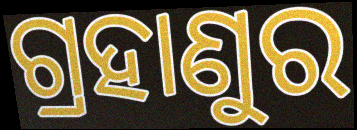
ଗ୍ରହାଣୁର